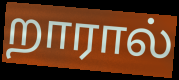
றாரால்